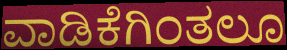
ವಾಡಿಕೆಗಿಂತಲೂ